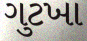
ગુટખા